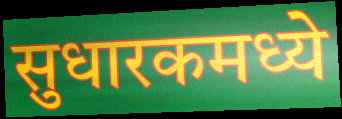
सुधारकमध्ये